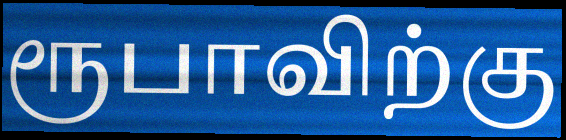
ரூபாவிற்கு